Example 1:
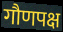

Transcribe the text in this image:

गौणपक्ष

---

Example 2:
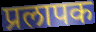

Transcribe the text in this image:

प्रलापक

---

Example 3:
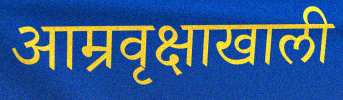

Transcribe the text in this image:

आम्रवृक्षाखाली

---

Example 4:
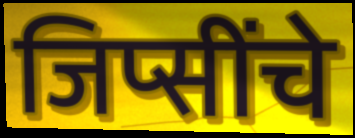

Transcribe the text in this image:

जिप्सींचे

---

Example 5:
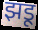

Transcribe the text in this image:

झडू